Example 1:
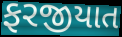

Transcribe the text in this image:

ફરજીયાત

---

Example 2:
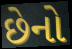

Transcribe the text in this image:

છેનો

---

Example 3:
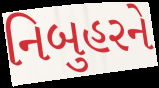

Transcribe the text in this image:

નિબુહરને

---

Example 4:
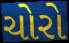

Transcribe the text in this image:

ચોરો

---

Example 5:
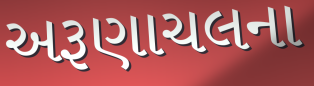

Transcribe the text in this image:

અરૂણાચલના